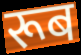
रूब